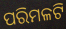
ପରିମଳଟି